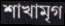
শাখামৃগ